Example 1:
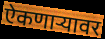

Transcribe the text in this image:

ऐकणार्‍यावर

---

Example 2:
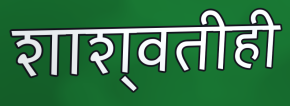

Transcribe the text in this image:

शाश्वतीही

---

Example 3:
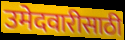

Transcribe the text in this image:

उमेदवारीसाठी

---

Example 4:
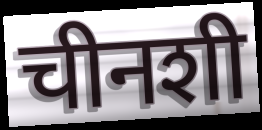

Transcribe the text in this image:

चीनशी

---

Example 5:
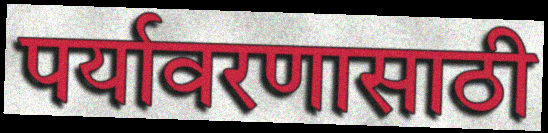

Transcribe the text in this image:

पर्यावरणासाठी